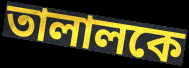
তালালকে